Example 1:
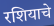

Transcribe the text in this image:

रशियाचे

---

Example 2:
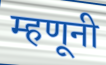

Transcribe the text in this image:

म्हणूनी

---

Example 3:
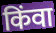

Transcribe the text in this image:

किंवा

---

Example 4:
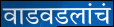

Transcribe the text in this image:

वाडवडलांचं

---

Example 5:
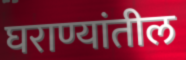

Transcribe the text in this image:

घराण्यांतील